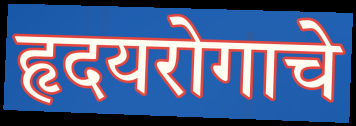
हृदयरोगाचे